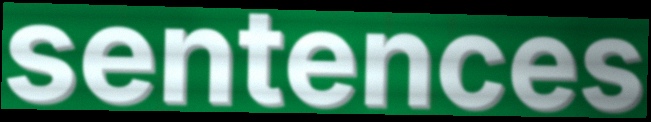
sentences